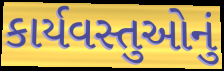
કાર્યવસ્તુઓનું